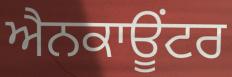
ਐਨਕਾਊਂਟਰ